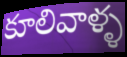
కూలివాళ్ళ